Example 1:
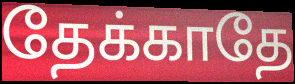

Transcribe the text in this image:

தேக்காதே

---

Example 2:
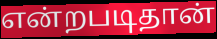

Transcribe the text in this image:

என்றபடிதான்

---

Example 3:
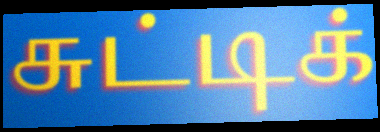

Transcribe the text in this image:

சுட்டிக்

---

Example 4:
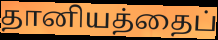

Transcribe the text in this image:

தானியத்தைப்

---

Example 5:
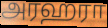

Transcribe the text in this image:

அரஹரா